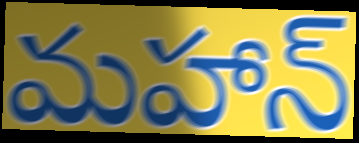
మహాన్